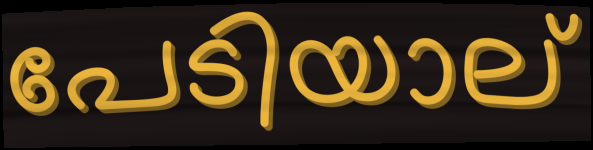
പേടിയാല്